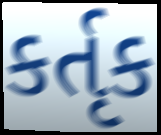
કર્તૃક